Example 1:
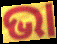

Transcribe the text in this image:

ଭା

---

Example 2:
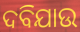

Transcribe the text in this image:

ଦବିଯାଉ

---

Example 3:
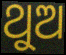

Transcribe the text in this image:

ଥୁଅ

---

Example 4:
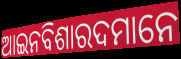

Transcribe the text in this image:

ଆଇନବିଶାରଦମାନେ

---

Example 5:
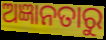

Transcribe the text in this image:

ଅଜ୍ଞାନତାରୁ